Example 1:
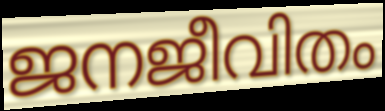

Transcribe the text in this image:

ജനജീവിതം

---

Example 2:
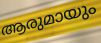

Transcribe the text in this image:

ആരുമായും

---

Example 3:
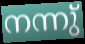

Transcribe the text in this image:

നന്നു്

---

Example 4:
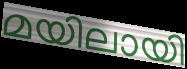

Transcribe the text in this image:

മയിലായി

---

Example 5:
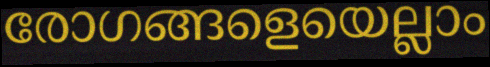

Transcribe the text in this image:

രോഗങ്ങളെയെല്ലാം